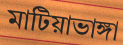
মাটিয়াভাঙ্গা